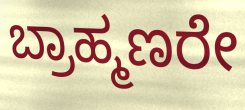
ಬ್ರಾಹ್ಮಣರೇ